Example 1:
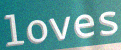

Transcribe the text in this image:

loves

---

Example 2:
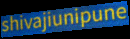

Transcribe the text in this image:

shivajiunipune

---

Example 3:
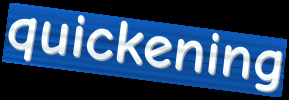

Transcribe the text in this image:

quickening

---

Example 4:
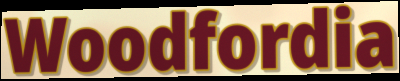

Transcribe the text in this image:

Woodfordia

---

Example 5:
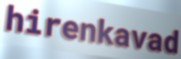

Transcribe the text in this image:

hirenkavad